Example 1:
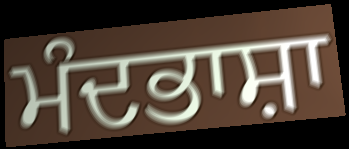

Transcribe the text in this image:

ਮੰਦਭਾਸ਼ਾ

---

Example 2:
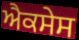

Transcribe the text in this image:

ਐਕਸੇਸ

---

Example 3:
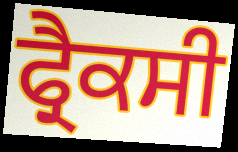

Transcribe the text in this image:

ਫ੍ਰੈਕਸੀ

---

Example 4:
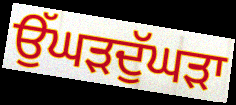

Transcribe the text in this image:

ਉੱਘੜਦੁੱਘੜਾ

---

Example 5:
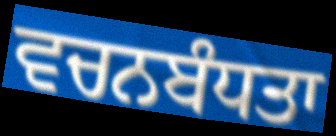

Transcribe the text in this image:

ਵਚਨਬੰਧਤਾ